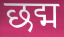
छद्म